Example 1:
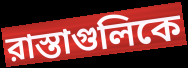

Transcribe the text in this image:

রাস্তাগুলিকে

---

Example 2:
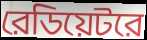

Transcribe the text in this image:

রেডিয়েটরে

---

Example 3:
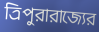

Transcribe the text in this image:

ত্রিপুরারাজ্যের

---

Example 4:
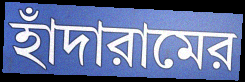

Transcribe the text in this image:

হাঁদারামের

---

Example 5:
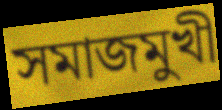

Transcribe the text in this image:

সমাজমুখী